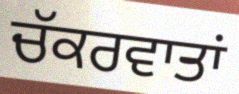
ਚੱਕਰਵਾਤਾਂ